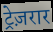
ट्रेज़रार